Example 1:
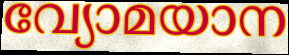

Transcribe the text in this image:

വ്യോമയാന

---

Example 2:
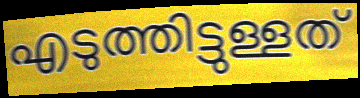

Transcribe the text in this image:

എടുത്തിട്ടുള്ളത്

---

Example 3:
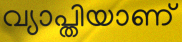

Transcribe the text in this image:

വ്യാപ്തിയാണ്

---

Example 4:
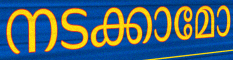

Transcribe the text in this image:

നടക്കാമോ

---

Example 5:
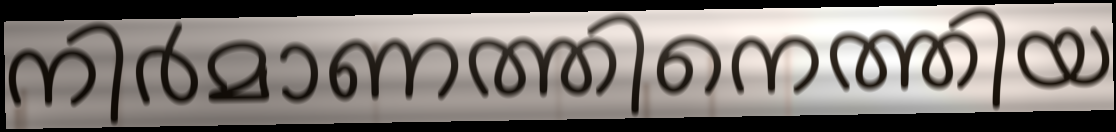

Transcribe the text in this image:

നിർമാണത്തിനെത്തിയ